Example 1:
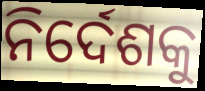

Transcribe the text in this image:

ନିର୍ଦେଶକୁ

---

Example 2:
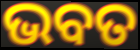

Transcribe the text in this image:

ଭବତ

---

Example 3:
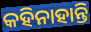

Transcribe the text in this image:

କହିନାହାନ୍ତି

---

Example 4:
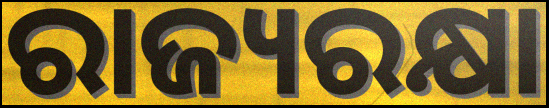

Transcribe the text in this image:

ରାଜ୍ୟରକ୍ଷା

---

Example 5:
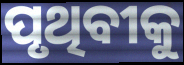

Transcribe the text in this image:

ପୃଥିବୀକୁ